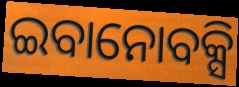
ଇବାନୋବକ୍ସି